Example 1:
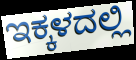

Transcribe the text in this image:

ಇಕ್ಕಳದಲ್ಲಿ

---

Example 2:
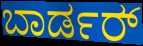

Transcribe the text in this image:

ಬಾರ್ಡರ್‍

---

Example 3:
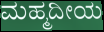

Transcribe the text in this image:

ಮಹ್ಮದೀಯ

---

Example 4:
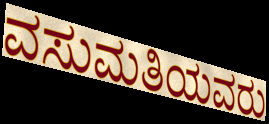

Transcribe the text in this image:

ವಸುಮತಿಯವರು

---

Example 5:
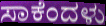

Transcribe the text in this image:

ಸಾಕೆಂದಳು